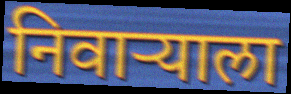
निवाऱ्याला